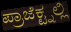
ಪ್ರಾಜೆಕ್ಟ್ನಲ್ಲಿ